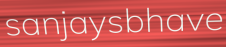
sanjaysbhave